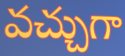
వచ్చుగా